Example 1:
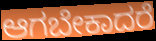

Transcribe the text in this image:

ಆಗಬೇಕಾದರೆ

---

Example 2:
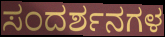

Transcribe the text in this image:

ಸಂದರ್ಶನಗಳ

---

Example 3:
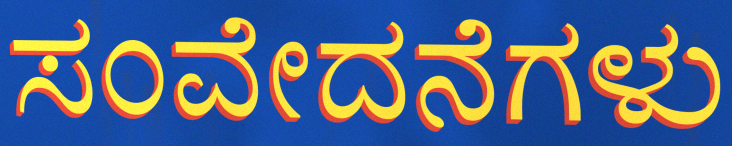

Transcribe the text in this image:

ಸಂವೇದನೆಗಳು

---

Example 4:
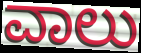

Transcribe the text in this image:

ವಾಲು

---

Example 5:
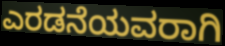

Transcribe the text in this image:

ಎರಡನೆಯವರಾಗಿ